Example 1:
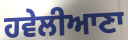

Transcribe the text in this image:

ਹਵੇਲੀਆਣਾ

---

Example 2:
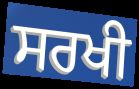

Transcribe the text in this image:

ਸਰਖੀ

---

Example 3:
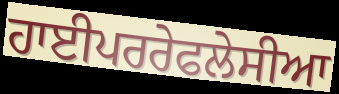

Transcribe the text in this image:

ਹਾਈਪਰਰੇਫਲੇਸੀਆ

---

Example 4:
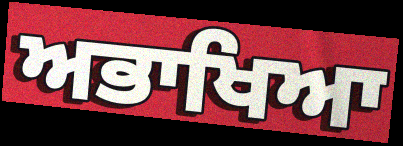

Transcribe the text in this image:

ਅਭਾਖਿਆ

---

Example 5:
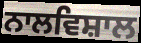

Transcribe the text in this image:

ਨਾਲਵਿਸ਼ਾਲ